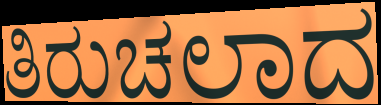
ತಿರುಚಲಾದ